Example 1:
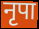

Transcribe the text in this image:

नृपा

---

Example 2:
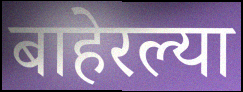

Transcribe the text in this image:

बाहेरल्या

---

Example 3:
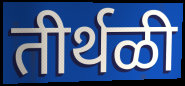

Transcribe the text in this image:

तीर्थळी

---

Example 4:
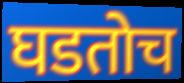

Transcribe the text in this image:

घडतोच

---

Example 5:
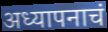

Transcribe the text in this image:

अध्यापनाचं